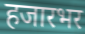
हजारभर